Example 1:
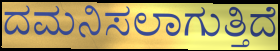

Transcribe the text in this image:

ದಮನಿಸಲಾಗುತ್ತಿದೆ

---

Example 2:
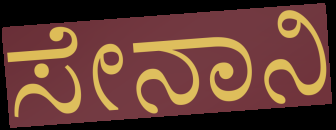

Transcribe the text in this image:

ಸೇನಾನಿ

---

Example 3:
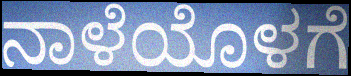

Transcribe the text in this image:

ನಾಳೆಯೊಳಗೆ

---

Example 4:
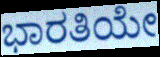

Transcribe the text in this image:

ಭಾರತಿಯೇ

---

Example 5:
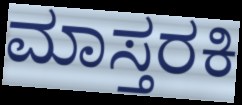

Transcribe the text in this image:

ಮಾಸ್ತರಕಿ